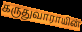
கருதுவாராயின்